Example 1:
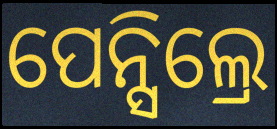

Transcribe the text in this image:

ପେନ୍ସିଲ୍ରେ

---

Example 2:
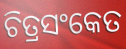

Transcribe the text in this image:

ଚିତ୍ରସଂକେତ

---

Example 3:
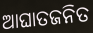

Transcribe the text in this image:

ଆଘାତଜନିତ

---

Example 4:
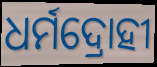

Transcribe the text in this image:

ଧର୍ମଦ୍ରୋହୀ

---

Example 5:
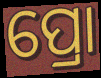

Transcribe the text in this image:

ପ୍ରୋ